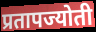
प्रतापज्योती